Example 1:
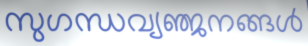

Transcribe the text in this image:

സുഗന്ധവ്യഞ്ജനങ്ങൾ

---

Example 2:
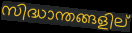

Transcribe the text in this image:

സിദ്ധാന്തങ്ങളില്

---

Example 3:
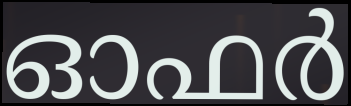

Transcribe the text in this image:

ഓഫർ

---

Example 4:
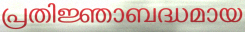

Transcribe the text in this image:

പ്രതിജ്ഞാബദ്ധമായ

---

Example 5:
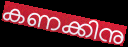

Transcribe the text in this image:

കണക്കിനു